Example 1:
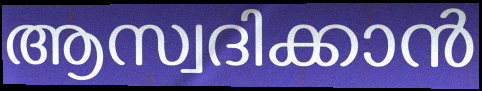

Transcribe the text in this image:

ആസ്വദിക്കാൻ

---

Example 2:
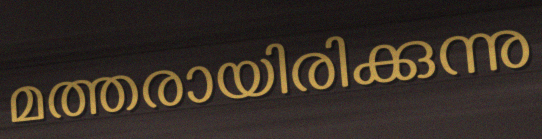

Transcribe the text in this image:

മത്തരായിരിക്കുന്നു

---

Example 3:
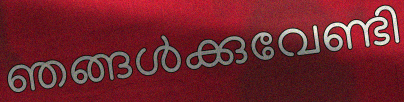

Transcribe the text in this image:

ഞങ്ങൾക്കുവേണ്ടി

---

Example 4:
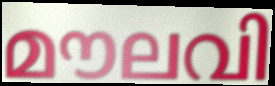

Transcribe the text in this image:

മൗലവി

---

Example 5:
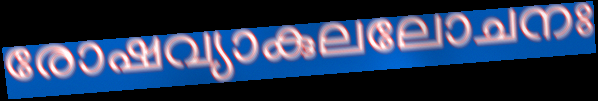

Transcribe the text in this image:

രോഷവ്യാകുലലോചനഃ